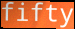
fifty